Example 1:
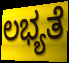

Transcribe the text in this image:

ಲಭ್ಯತೆ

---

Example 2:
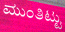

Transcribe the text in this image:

ಮುಂತಿಟ್ಟು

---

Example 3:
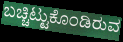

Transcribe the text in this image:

ಬಚ್ಚಿಟ್ಟುಕೊಂಡಿರುವ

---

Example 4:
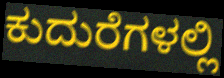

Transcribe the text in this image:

ಕುದುರೆಗಳಲ್ಲಿ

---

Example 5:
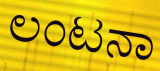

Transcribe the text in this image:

ಲಂಟನಾ